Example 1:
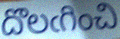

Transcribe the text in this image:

దొలఁగించి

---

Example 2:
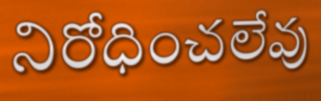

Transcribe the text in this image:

నిరోధించలేవు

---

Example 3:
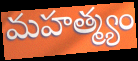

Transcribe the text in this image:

మహత్మ్యం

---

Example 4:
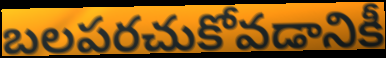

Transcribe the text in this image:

బలపరచుకోవడానికీ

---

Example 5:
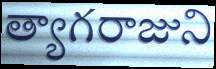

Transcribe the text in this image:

త్యాగరాజుని